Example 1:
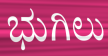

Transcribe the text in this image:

ಭುಗಿಲು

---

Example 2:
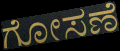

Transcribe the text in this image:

ಗೋಸಣೆ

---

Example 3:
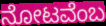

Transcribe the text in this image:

ನೋಟವೆಂಬ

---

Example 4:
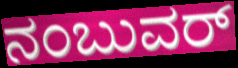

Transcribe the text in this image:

ನಂಬುವರ್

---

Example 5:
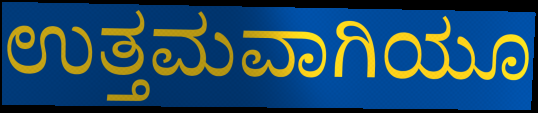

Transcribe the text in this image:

ಉತ್ತಮವಾಗಿಯೂ